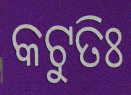
କଟୁତିଃ